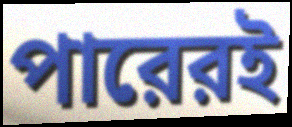
পারেরই